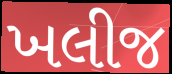
ખલીજ